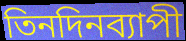
তিনদিনব্যাপী